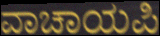
ವಾಚಾಯಪಿ